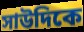
সাউদিকে